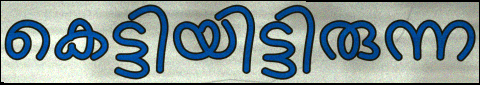
കെട്ടിയിട്ടിരുന്ന